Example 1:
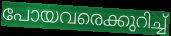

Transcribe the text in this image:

പോയവരെക്കുറിച്ച്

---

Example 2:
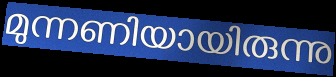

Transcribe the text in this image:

മുന്നണിയായിരുന്നു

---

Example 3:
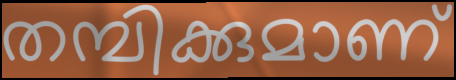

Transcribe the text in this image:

തമ്പിക്കുമാണ്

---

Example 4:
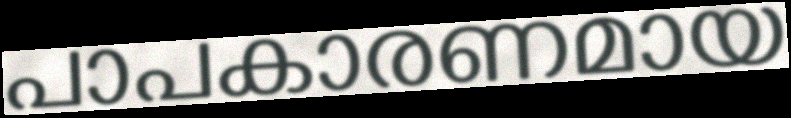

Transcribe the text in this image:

പാപകാരണമായ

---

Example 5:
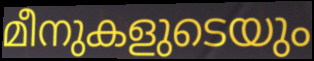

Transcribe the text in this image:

മീനുകളുടെയും